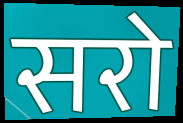
सरो